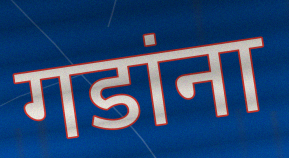
गडांना